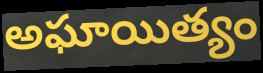
అఘాయిత్యం